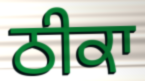
ਠੀਕਾ